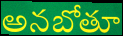
అనబోతూ